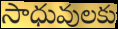
సాధువులకు